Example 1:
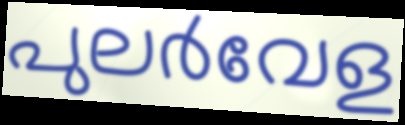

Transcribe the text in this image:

പുലർവേള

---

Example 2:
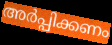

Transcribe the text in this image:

അർപ്പിക്കണം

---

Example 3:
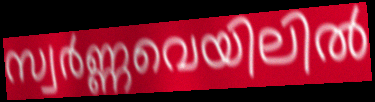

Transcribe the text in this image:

സ്വർണ്ണവെയിലിൽ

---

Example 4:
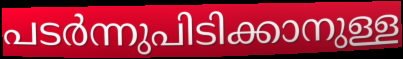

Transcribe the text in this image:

പടർന്നുപിടിക്കാനുള്ള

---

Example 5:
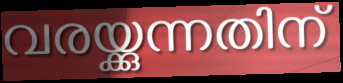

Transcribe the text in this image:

വരയ്ക്കുന്നതിന്